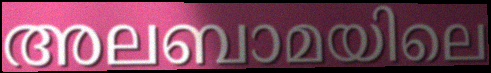
അലബാമയിലെ